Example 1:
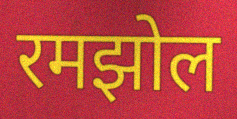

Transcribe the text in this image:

रमझोल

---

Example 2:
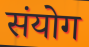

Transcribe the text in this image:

संयोग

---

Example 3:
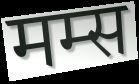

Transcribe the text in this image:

मम्स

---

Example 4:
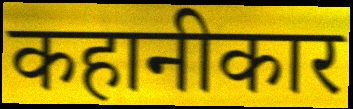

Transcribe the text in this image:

कहानीकार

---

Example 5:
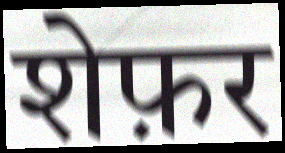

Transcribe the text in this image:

शेफ़र